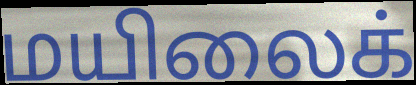
மயிலைக்